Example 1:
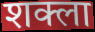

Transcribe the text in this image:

शक्ला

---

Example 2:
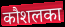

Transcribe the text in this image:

कौशलका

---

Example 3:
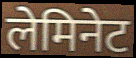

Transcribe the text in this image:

लेमिनेट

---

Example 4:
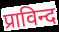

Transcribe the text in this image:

प्राविन्द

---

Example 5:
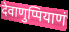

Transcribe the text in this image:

देवाणुप्पियाणं